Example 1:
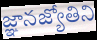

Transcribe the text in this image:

జ్ఞానజ్యోతిని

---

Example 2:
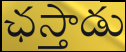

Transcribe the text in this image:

ఛస్తాడు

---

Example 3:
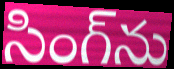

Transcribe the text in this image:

సింగ్‌ను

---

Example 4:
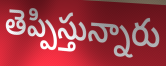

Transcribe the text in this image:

తెప్పిస్తున్నారు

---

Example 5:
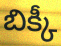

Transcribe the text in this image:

బిక్కీ